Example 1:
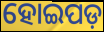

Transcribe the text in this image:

ହୋଇପଡ଼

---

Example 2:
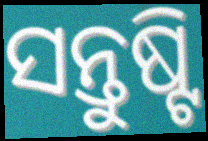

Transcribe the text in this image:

ସନ୍ତୁଷ୍ଟି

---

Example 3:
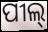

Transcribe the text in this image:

ପୀଲ୍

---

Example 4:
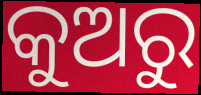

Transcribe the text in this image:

କୁଅରୁ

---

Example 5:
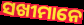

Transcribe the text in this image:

ସଖୀମାନେ